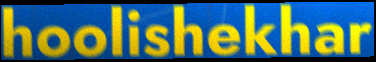
hoolishekhar